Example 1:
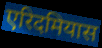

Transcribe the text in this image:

एरिदमियास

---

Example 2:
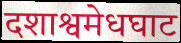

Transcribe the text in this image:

दशाश्वमेधघाट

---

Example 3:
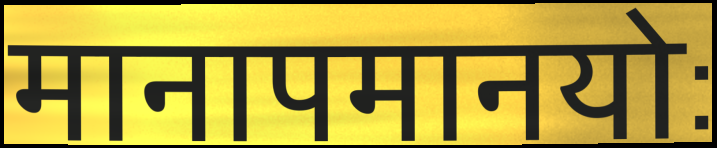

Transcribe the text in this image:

मानापमानयोः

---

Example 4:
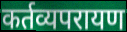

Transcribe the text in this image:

कर्तव्यपरायण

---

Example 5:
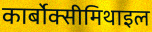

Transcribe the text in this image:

कार्बोक्सीमिथाइल